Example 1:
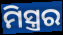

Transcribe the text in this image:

ମିସ୍ତ୍ରର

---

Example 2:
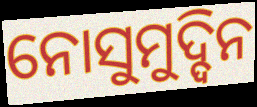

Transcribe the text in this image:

ନୋସୁମୁଦ୍ଦିନ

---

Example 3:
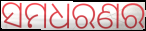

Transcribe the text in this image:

ସମଧରଣର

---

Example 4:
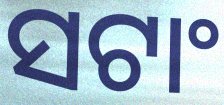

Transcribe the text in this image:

ସଟାଂ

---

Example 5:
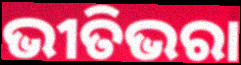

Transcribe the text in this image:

ଭୀତିଭରା